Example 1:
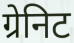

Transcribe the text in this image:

ग्रेनिट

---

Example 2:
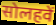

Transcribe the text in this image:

सोलहवें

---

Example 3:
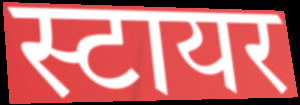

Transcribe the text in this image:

स्टायर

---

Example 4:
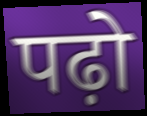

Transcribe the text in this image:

पढ़ो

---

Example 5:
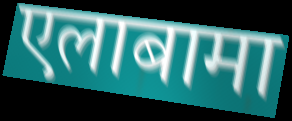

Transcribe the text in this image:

एलाबामा